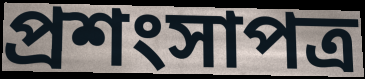
প্ৰশংসাপত্ৰ